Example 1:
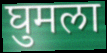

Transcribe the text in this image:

घुमला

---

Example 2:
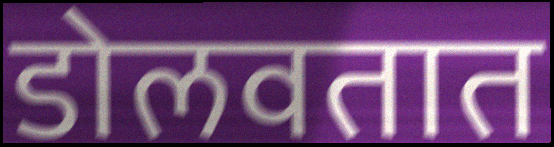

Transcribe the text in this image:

डोलवतात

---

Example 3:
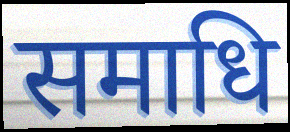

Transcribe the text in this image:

समाधि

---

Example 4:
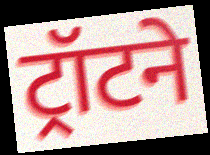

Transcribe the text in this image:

ट्रॉटने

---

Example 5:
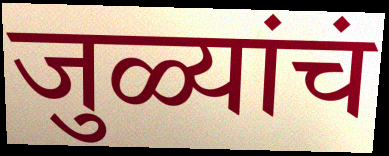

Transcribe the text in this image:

जुळ्यांचं